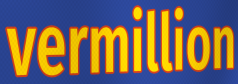
vermillion